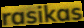
rasikas